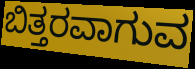
ಬಿತ್ತರವಾಗುವ